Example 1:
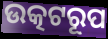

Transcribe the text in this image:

ଉତ୍କଟରୂପ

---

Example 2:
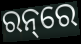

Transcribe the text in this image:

ରନ୍‌ରେ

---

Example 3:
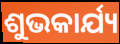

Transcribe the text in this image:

ଶୁଭକାର୍ଯ୍ୟ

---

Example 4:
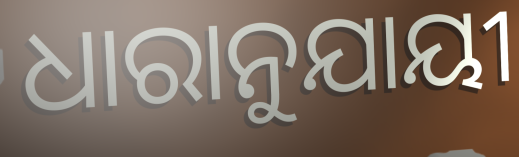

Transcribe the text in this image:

ଧାରାନୁଯାୟୀ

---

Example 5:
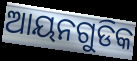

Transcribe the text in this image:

ଆୟନଗୁଡିକ